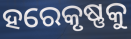
ହରେକୃଷ୍ଣକୁ